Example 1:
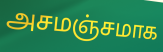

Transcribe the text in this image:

அசமஞ்சமாக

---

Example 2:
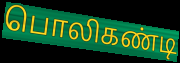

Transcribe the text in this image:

பொலிகண்டி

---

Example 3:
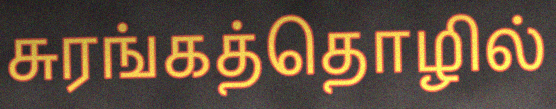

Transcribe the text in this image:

சுரங்கத்தொழில்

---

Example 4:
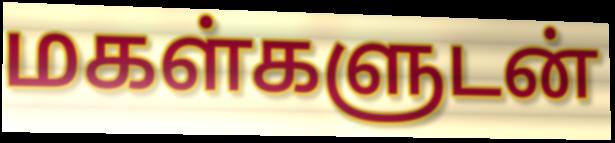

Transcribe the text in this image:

மகள்களுடன்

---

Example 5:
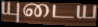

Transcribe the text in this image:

யுடைய